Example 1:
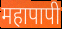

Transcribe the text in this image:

महापापी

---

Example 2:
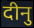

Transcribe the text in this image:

दीनु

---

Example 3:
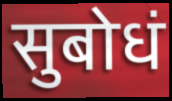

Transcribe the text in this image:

सुबोधं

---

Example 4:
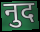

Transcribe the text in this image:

नुद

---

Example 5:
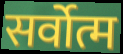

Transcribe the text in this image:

सर्वोत्म